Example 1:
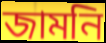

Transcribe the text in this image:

জামনি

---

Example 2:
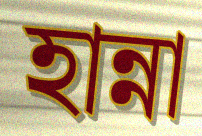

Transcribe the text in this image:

হান্না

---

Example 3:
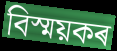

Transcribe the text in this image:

বিস্ময়কৰ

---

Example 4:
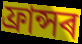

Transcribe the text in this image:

ফ্ৰান্সৰ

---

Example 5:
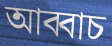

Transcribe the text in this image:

আব্বাচ